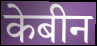
केबीन